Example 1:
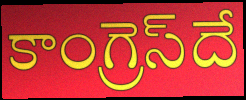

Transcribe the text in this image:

కాంగ్రెస్‌దే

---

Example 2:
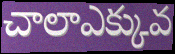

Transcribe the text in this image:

చాలాఎక్కువ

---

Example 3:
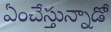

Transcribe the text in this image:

ఏంచేస్తున్నాడో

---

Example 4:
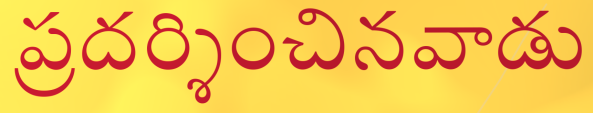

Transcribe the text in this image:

ప్రదర్శించినవాడు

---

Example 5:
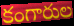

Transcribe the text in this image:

కంగారుల